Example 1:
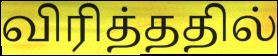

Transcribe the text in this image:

விரித்ததில்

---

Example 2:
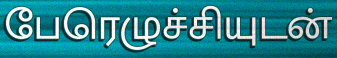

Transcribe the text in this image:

பேரெழுச்சியுடன்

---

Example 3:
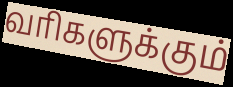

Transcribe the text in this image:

வரிகளுக்கும்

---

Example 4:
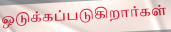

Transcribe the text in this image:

ஒடுக்கப்படுகிறார்கள்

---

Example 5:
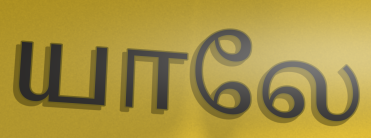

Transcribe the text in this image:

யாலே